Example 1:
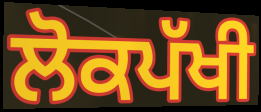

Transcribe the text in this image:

ਲੋਕਪੱਖੀ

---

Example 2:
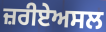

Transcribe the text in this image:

ਜ਼ਰੀਏਅਸਲ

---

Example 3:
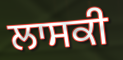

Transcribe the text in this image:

ਲਾਸਕੀ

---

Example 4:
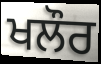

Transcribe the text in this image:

ਖਲੌਰ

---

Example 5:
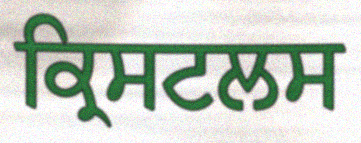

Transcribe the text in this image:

ਕ੍ਰਿਸਟਲਸ